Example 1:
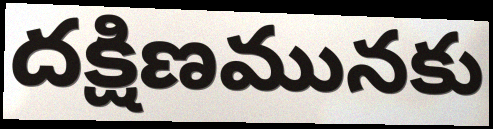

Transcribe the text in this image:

దక్షిణమునకు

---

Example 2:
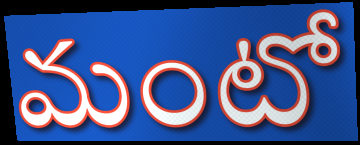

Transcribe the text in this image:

మంటో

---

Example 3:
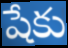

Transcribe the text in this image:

షేకు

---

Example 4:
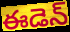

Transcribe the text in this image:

ఈడెన్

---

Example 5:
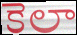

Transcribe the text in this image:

కెలా